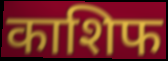
काशिफ